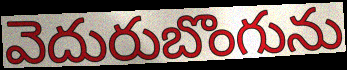
వెదురుబొంగును